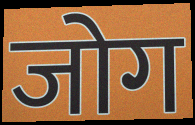
जोग